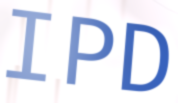
IPD